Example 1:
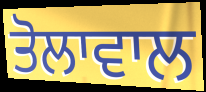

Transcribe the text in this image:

ਤੋਲਾਵਾਲ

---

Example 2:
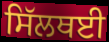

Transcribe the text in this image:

ਸਿੱਲਥਈ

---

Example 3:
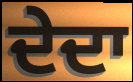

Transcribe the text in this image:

ਦੇਦਾ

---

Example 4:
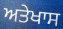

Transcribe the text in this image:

ਅਤੇਖਾਸ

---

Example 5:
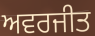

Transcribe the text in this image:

ਅਵਰਜੀਤ